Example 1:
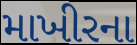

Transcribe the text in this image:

માખીરના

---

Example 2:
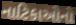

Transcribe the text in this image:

નાટિકાઓનો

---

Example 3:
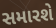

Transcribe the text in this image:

સમારશે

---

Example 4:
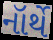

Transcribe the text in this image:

નૉર્થે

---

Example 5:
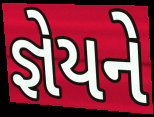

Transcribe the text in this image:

જ્ઞેયને